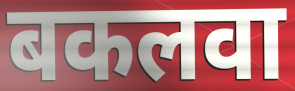
बकलवा